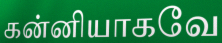
கன்னியாகவே